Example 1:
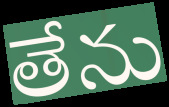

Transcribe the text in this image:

తేను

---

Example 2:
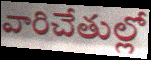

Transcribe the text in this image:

వారిచేతుల్లో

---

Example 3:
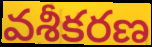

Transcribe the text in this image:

వశీకరణ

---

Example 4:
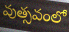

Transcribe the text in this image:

వుత్సవంలో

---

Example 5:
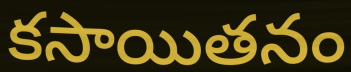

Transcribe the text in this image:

కసాయితనం